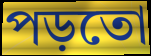
পড়তো